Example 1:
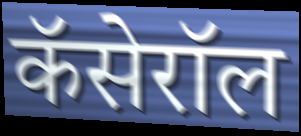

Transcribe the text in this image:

कॅसेरॉल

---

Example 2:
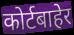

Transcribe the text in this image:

कोर्टबाहेर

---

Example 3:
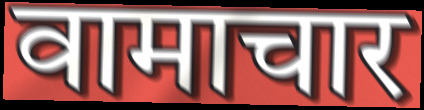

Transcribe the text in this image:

वामाचार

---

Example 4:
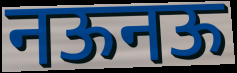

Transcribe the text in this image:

नऊनऊ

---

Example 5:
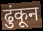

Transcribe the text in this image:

ढुंकून